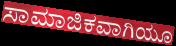
ಸಾಮಾಜಿಕವಾಗಿಯೂ